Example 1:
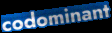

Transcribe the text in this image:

codominant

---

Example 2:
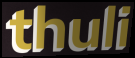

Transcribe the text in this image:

thuli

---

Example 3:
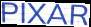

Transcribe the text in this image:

PIXAR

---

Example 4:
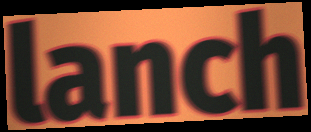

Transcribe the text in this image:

lanch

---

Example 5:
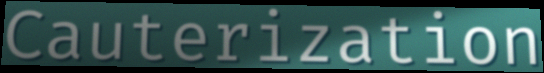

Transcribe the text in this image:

Cauterization